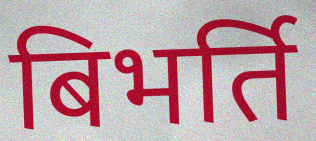
बिभर्ति